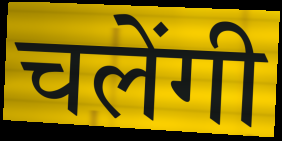
चलेंगी